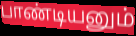
பாண்டியனும்